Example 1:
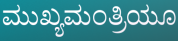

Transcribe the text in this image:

ಮುಖ್ಯಮಂತ್ರಿಯೂ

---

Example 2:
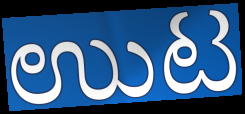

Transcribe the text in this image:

ಉುಟ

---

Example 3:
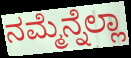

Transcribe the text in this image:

ನಮ್ಮೆನ್ನೆಲ್ಲಾ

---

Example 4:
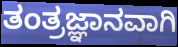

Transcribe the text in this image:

ತಂತ್ರಜ್ಞಾನವಾಗಿ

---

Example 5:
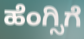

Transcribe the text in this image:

ಹೆಂಗ್ಸಿಗೆ